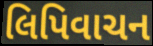
લિપિવાચન